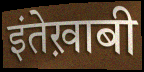
इंतेख़ाबी